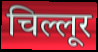
चिल्लूर